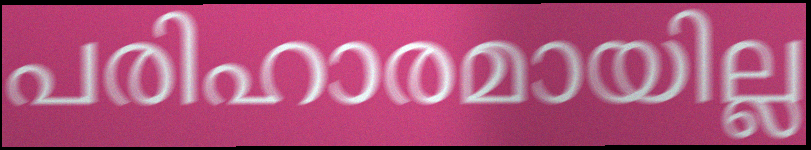
പരിഹാരമായില്ല